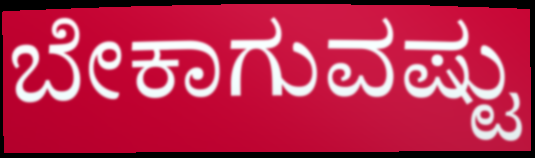
ಬೇಕಾಗುವಷ್ಟು